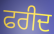
ਫਰੀਦ